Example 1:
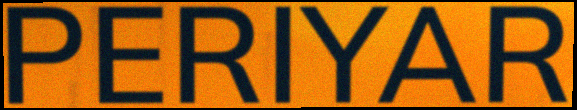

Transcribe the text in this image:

PERIYAR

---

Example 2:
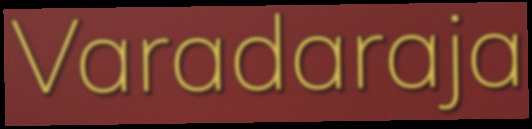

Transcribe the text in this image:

Varadaraja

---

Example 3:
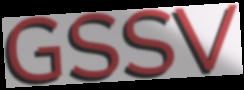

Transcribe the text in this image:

GSSV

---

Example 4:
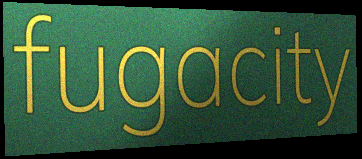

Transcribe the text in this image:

fugacity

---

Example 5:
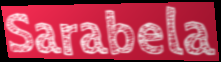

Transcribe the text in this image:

Sarabela